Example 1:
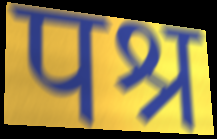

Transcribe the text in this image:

पश्र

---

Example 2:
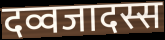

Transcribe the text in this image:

दव्वजादस्स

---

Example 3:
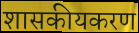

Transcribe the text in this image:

शासकीयकरण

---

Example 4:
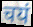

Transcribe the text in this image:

चयं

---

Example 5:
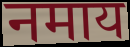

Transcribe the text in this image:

नमाय